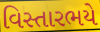
વિસ્તારભયે